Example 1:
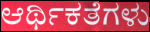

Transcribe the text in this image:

ಆರ್ಥಿಕತೆಗಳು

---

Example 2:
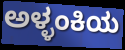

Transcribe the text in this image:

ಅಳ್ಳಂಕಿಯ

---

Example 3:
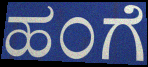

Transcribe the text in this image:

ಹಂಗೆ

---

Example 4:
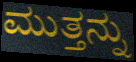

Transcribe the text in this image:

ಮುತ್ತನ್ನು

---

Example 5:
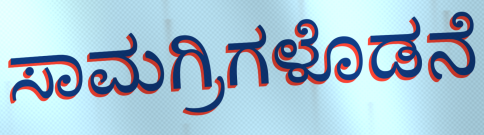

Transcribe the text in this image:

ಸಾಮಗ್ರಿಗಳೊಡನೆ